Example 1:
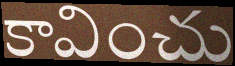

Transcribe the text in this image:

కావించు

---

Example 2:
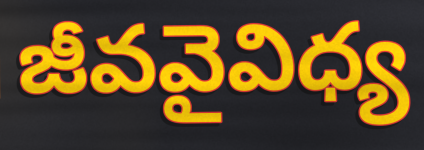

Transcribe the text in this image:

జీవవైవిధ్య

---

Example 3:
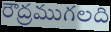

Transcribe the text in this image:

రౌద్రముగలది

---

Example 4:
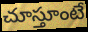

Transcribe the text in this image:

చూస్తూంటే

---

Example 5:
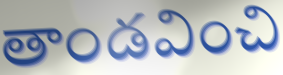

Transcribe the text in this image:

తాండవించి